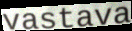
vastava